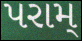
પરામ્